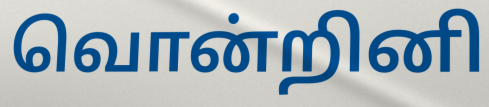
வொன்றினி